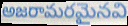
అజరామరమైనవి